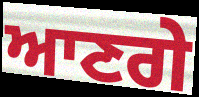
ਆਣਗੇ